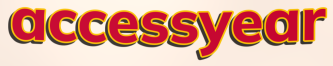
accessyear